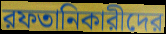
রফতানিকারীদের